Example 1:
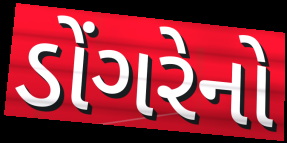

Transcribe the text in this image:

ડોંગરેનો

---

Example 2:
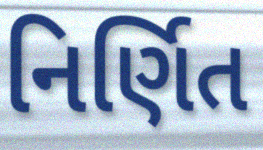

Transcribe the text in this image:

નિર્ણિત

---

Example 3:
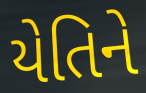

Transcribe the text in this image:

યેતિને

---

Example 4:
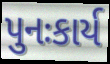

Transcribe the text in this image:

પુનઃકાર્ય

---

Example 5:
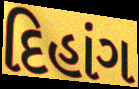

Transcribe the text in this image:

દિહાંગ